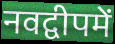
नवद्वीपमें